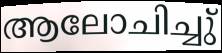
ആലോചിച്ചു്